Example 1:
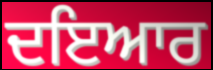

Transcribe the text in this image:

ਦਇਆਰ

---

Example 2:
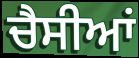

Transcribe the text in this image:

ਚੈਸੀਆਂ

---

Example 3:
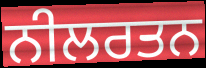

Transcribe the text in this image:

ਨੀਲਰਤਨ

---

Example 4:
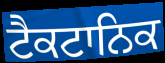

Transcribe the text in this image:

ਟੈਕਟਾਨਿਕ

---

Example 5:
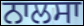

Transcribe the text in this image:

ਨਾਲਸਾ